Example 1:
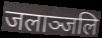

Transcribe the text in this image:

जलाञ्जलि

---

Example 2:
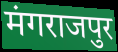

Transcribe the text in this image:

मंगराजपुर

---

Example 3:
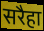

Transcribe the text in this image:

सरैहा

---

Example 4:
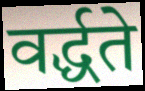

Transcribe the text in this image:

वर्द्धते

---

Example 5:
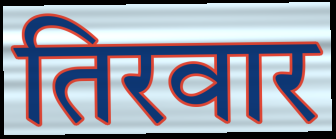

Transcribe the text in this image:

तिरवार